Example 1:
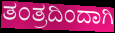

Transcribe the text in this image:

ತಂತ್ರದಿಂದಾಗಿ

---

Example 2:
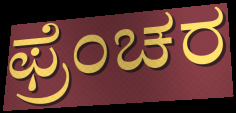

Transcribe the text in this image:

ಫ್ರೆಂಚರ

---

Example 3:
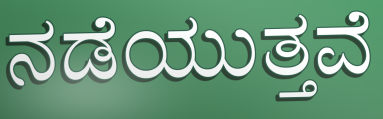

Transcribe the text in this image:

ನಡೆಯುತ್ತವೆ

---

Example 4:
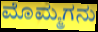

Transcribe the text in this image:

ಮೊಮ್ಮಗನು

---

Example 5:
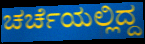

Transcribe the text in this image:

ಚರ್ಚೆಯಲ್ಲಿದ್ದ